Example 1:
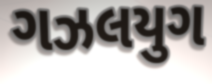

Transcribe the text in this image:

ગઝલયુગ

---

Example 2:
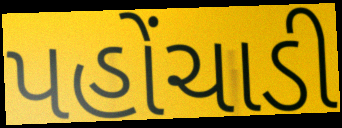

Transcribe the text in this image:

પહોંચાડી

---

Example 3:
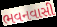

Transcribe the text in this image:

ભવનવાસી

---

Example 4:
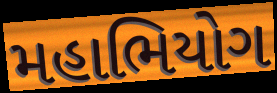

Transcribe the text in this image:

મહાભિયોગ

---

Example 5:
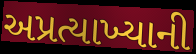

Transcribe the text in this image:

અપ્રત્યાખ્યાની